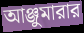
আঞ্জুমারার